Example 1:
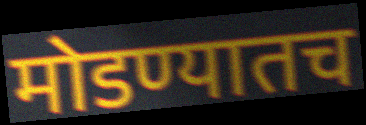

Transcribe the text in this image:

मोडण्यातच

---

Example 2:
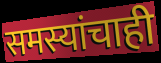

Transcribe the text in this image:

समस्यांचाही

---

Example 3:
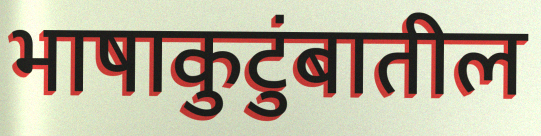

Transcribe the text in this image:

भाषाकुटुंबातील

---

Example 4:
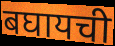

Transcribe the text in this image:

बघायची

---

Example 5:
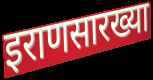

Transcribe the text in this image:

इराणसारख्या